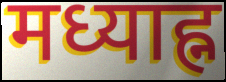
मध्याह्न